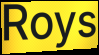
Roys